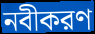
নবীকরণ